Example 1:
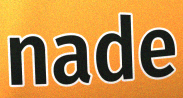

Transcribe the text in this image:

nade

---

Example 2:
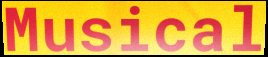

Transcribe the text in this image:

Musical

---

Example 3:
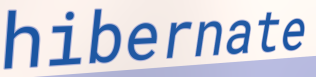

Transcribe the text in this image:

hibernate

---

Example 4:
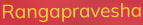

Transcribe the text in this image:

Rangapravesha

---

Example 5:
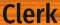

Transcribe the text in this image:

Clerk